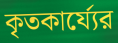
কৃতকার্য্যের